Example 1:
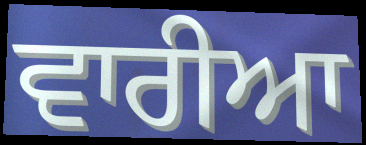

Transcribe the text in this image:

ਵਾਰੀਆ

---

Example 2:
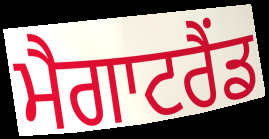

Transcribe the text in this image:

ਮੈਗਾਟਰੈਂਡ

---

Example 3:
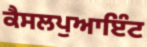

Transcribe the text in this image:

ਕੈਸਲਪੁਆਇੰਟ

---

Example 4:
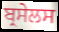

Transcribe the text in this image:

ਬ੍ਰਸੇਲਸ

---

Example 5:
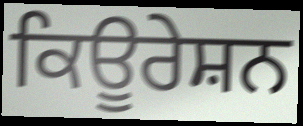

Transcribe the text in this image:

ਕਿਊਰੇਸ਼ਨ